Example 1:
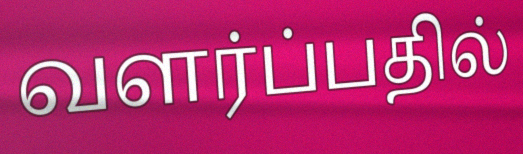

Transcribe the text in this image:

வளர்ப்பதில்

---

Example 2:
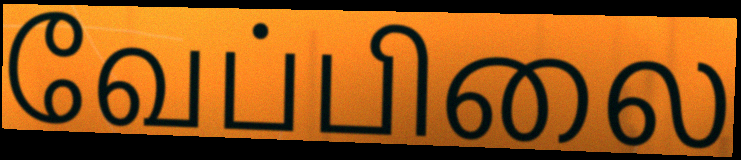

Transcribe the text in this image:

வேப்பிலை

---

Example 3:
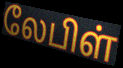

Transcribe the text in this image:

லேபிள்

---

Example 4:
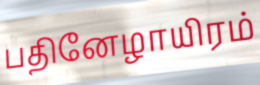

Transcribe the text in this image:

பதினேழாயிரம்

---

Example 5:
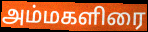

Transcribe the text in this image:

அம்மகளிரை